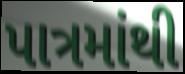
પાત્રમાંથી